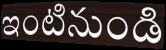
ఇంటినుండి